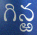
గిన్ఱ